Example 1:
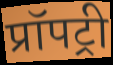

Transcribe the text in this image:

प्रॉपट्री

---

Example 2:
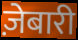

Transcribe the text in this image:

ज़ेबारी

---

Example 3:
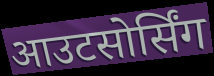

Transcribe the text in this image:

आउटसोर्सिंग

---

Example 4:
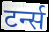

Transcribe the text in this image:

टर्न्स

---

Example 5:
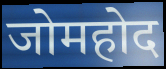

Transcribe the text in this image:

जोमहोद